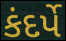
કંદર્પે